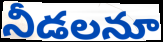
నీడలనూ